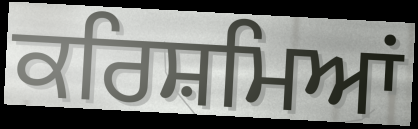
ਕਰਿਸ਼ਮਿਆਂ